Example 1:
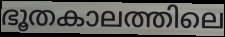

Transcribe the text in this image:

ഭൂതകാലത്തിലെ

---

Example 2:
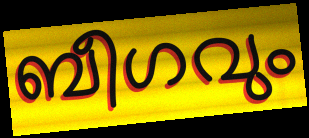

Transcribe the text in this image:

ബീഗവും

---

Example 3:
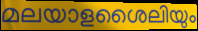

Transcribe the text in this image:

മലയാളശൈലിയും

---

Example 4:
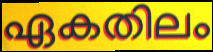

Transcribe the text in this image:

ഏകതിലം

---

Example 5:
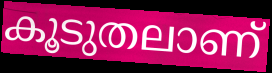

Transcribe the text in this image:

കൂടുതലാണ്